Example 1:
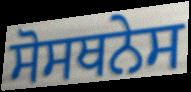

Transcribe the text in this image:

ਸੋਸਥਨੇਸ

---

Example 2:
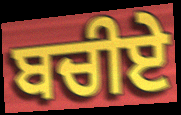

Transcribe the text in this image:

ਬਚੀਏ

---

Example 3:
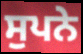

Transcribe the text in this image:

ਸੁਪਨੇ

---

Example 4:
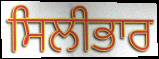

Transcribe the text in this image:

ਸਿਲੀਭਾਰ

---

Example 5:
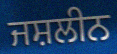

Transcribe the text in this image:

ਜਸ਼ਲੀਨ